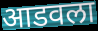
आडवला